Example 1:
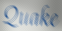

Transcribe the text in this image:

Quake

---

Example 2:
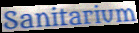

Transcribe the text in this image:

Sanitarium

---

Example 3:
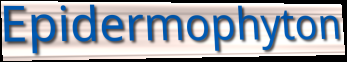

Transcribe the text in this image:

Epidermophyton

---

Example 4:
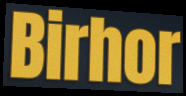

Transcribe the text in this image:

Birhor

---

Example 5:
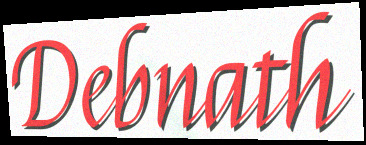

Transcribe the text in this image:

Debnath